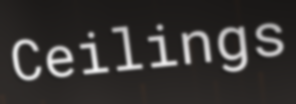
Ceilings